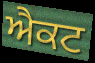
ਐਕਟ